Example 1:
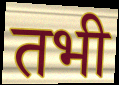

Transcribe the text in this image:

तभी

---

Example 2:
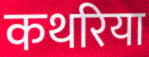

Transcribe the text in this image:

कथरिया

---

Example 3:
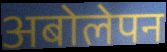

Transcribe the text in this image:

अबोलेपन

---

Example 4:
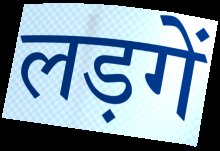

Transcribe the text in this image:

लड़गें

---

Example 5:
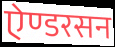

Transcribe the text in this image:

ऐण्डरसन